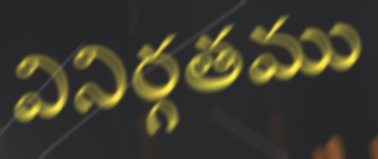
వినిర్గతము